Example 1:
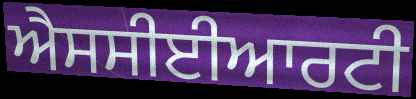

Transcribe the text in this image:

ਐਸਸੀਈਆਰਟੀ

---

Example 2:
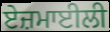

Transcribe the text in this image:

ਏਜ਼ਮਾਈਲੀ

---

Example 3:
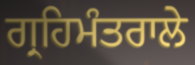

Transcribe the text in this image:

ਗ੍ਰਹਿਮੰਤਰਾਲੇ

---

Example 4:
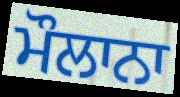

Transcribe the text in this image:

ਮੌਲਾਨਾ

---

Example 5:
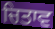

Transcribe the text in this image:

ਚਿਤਾਵ